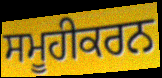
ਸਮੂਹੀਕਰਨ